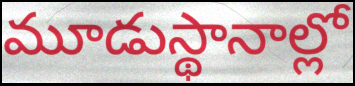
మూడుస్థానాల్లో